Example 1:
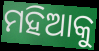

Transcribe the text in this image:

ମହିଆକୁ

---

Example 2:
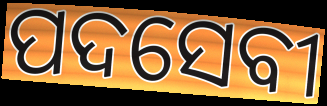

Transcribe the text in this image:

ପଦସେବୀ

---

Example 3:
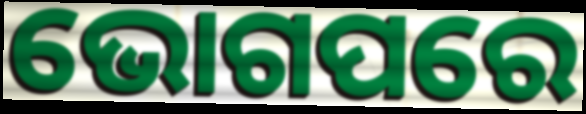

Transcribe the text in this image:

ଭୋଗପରେ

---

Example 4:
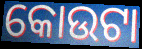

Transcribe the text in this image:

କୋଉଟା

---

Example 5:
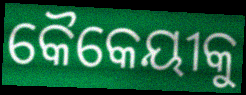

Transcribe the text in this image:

କୈକେୟୀକୁ